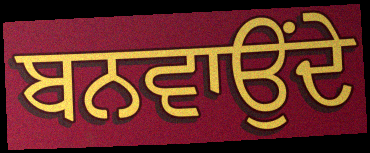
ਬਨਵਾਉਂਦੇ